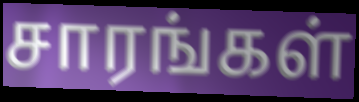
சாரங்கள்